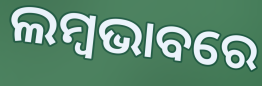
ଲମ୍ବଭାବରେ